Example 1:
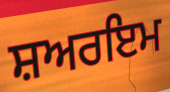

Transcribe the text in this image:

ਸ਼ਅਰਇਮ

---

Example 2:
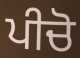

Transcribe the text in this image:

ਪੀਚੋ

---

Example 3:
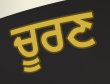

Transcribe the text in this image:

ਚੂਰਣ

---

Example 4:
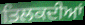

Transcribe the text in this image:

ਤਿਲਕਦੀਆਂ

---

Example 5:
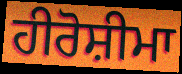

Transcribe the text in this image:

ਹੀਰੋਸ਼ੀਮਾ